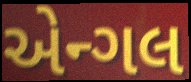
એન્ગલ